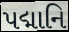
પદ્માનિ